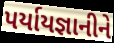
પર્યાયજ્ઞાનીને